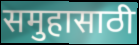
समुहासाठी